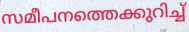
സമീപനത്തെക്കുറിച്ച്